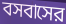
বসবাসের